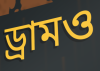
ড্রামও